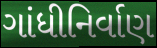
ગાંધીનિર્વાણ